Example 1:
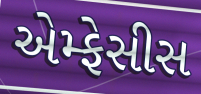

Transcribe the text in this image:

એમ્ફેસીસ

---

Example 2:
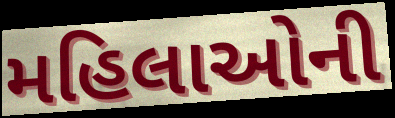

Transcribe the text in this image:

મહિલાઓની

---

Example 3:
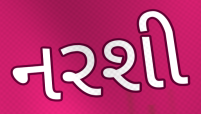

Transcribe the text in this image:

નરશી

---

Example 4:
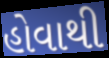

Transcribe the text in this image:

હોવાથી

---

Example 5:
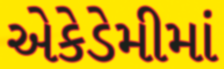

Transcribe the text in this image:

એકેડેમીમાં